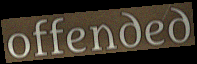
offended